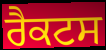
ਰੈਕਟਸ